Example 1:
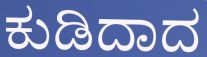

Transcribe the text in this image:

ಕುಡಿದಾದ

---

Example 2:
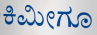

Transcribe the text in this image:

ಕಿಮೀಗೂ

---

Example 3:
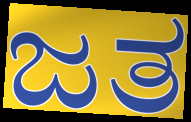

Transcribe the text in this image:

ಜತ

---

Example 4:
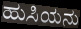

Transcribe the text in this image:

ಹುಸಿಯನು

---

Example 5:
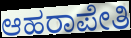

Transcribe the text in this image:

ಆಹರಾಪೇತಿ